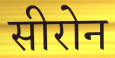
सीरोन